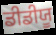
ਡੀਡੀਯੂ